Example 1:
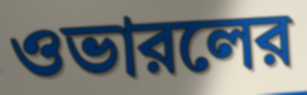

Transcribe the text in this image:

ওভারলের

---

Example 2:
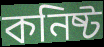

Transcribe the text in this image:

কনিষ্ট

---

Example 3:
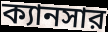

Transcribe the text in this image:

ক্যানসার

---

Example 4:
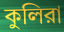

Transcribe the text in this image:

কুলিরা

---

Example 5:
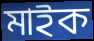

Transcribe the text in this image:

মাইক